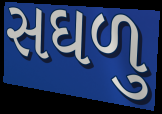
સઘળુ